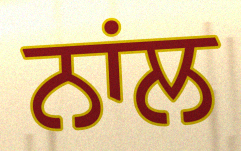
ਨਾਂਲ